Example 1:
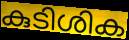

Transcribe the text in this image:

കുടിശിക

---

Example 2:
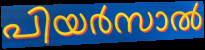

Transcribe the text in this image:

പിയർസാൽ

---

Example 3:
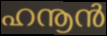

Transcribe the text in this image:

ഹനൂൻ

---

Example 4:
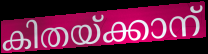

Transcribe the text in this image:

കിതയ്ക്കാന്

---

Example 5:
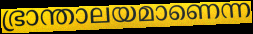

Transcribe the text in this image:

ഭ്രാന്താലയമാണെന്ന